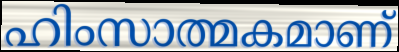
ഹിംസാത്മകമാണ്